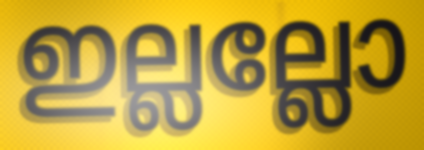
ഇല്ലല്ലോ